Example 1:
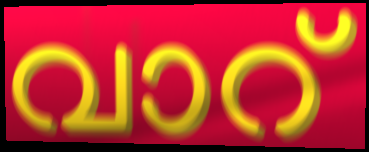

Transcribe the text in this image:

വാറ്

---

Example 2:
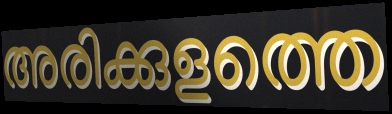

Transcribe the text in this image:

അരിക്കുളത്തെ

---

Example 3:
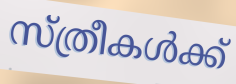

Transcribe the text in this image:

സ്ത്രീകൾക്ക്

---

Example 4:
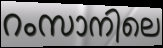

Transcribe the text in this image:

റംസാനിലെ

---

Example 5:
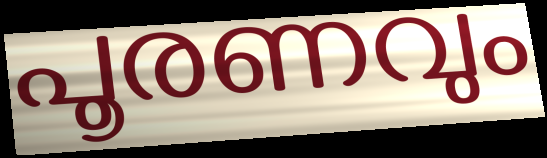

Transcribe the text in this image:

പൂരണവും